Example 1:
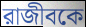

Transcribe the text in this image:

রাজীবকে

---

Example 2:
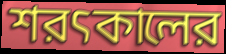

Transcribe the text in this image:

শরৎকালের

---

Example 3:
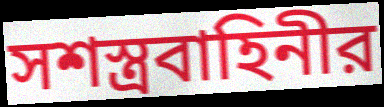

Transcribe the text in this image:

সশস্ত্রবাহিনীর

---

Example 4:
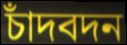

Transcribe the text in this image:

চাঁদবদন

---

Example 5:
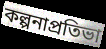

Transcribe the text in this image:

কল্পনাপ্রতিভা